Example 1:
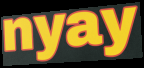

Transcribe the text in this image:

nyay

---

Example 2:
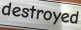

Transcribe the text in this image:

destroyed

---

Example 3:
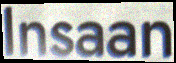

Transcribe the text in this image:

Insaan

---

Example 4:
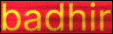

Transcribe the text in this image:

badhir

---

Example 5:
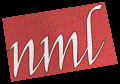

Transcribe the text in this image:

nml